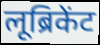
लूब्रिकेंट